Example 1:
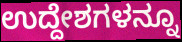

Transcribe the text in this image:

ಉದ್ದೇಶಗಳನ್ನೂ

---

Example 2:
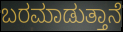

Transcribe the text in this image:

ಬರಮಾಡುತ್ತಾನೆ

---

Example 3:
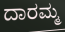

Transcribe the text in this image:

ದಾರಮ್ಮ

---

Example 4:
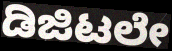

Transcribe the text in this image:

ಡಿಜಿಟಲೇ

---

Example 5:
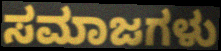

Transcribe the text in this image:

ಸಮಾಜಗಳು